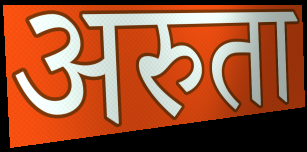
अरुता